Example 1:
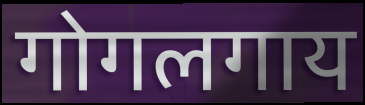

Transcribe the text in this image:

गोगलगाय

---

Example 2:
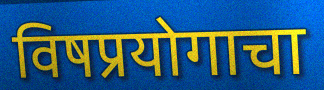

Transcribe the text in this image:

विषप्रयोगाचा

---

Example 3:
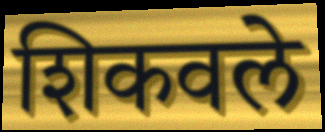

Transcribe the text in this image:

शिकवले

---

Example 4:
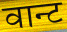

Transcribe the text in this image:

वान्ट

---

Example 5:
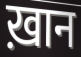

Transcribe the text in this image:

ख़ान